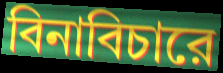
বিনাবিচারে